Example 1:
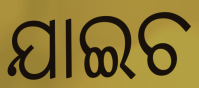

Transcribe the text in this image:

ଯାଇଚ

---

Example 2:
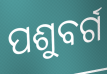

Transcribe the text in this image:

ପଶୁବର୍ଗ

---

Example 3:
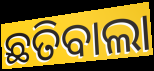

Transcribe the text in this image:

ଛତିବାଲା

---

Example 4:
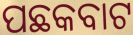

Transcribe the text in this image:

ପଛକବାଟ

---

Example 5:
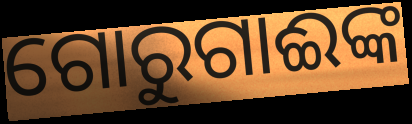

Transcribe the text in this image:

ଗୋରୁଗାଈଙ୍କ